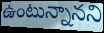
ఉంటున్నానని